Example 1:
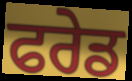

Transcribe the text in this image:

ਫਰੇਡ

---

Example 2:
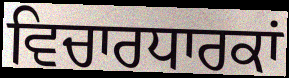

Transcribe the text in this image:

ਵਿਚਾਰਧਾਰਕਾਂ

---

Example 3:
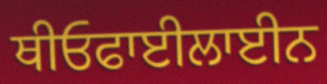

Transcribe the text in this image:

ਥੀਓਫਾਈਲਾਈਨ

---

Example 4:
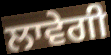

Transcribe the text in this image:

ਲਾਵੇਗੀ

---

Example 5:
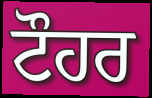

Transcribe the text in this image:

ਟੌਹਰ